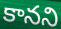
కానని